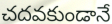
చదవకుండానే